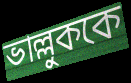
ভাল্লুককে